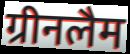
ग्रीनलैम